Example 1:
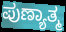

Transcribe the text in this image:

ಪುಣ್ಯಾತ್ಮ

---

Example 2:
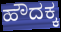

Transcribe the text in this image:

ಹೌದಕ್ಕ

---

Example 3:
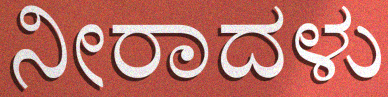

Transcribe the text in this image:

ನೀರಾದಳು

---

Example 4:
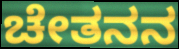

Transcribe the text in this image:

ಚೇತನನ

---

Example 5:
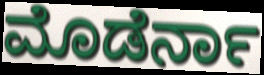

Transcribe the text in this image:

ಮೊಡೆರ್ನಾ